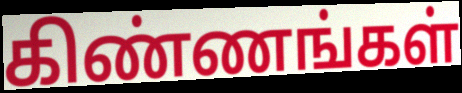
கிண்ணங்கள்